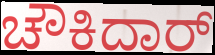
ಚೌಕಿದಾರ್